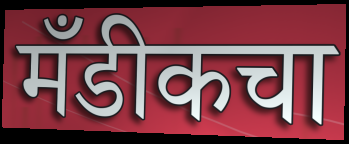
मँडीकचा